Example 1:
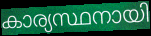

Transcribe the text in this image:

കാര്യസ്ഥനായി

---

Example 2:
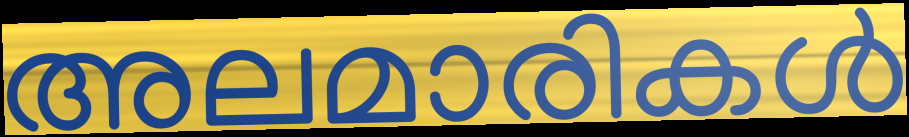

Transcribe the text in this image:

അലമാരികൾ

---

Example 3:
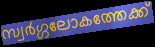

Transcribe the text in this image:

സ്വർഗ്ഗലോകത്തേക്ക്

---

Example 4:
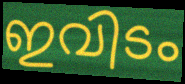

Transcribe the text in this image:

ഇവിടം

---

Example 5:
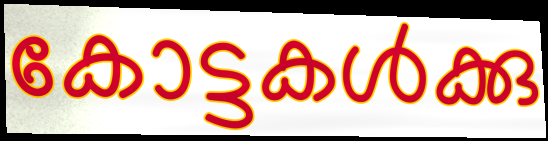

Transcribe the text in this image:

കോട്ടകൾക്കു